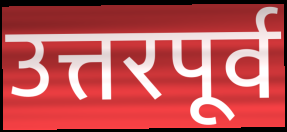
उत्तरपूर्व